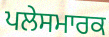
ਪਲੇਸਮਾਰਕ